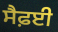
ਸੈਫ਼ਈ